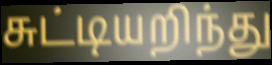
சுட்டியறிந்து